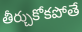
తీర్చుకోకపోతే